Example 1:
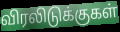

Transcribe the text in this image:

விரலிடுக்குகள்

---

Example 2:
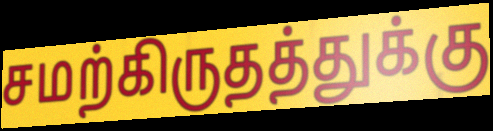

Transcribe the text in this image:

சமற்கிருதத்துக்கு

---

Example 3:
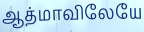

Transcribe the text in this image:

ஆத்மாவிலேயே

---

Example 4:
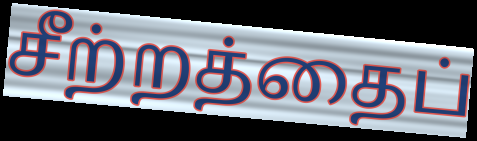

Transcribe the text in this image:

சீற்றத்தைப்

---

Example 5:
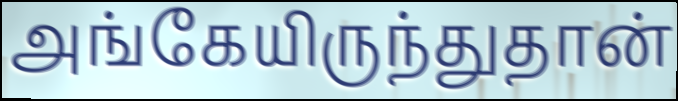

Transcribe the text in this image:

அங்கேயிருந்துதான்